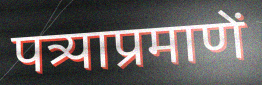
पत्र्याप्रमाणें